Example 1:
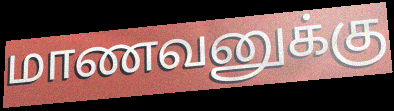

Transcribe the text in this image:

மாணவனுக்கு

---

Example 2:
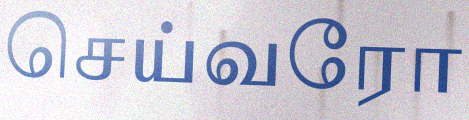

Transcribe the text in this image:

செய்வரோ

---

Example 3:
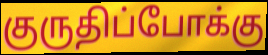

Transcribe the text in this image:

குருதிப்போக்கு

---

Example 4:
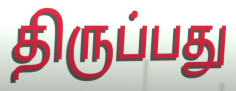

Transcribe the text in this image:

திருப்பது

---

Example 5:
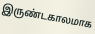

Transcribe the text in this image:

இருண்டகாலமாக